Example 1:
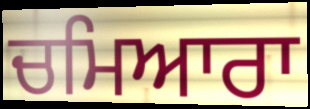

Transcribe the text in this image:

ਚਮਿਆਰਾ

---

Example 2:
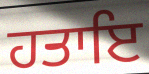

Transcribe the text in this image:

ਹਤਾਇ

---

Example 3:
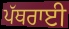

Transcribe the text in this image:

ਪੱਥਰਾਈ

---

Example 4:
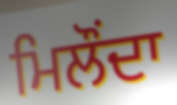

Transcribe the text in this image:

ਮਿਲੌਂਦਾ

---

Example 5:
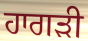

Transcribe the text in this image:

ਹਾਗੜੀ